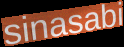
sinasabi